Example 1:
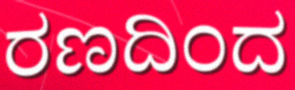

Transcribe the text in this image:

ರಣದಿಂದ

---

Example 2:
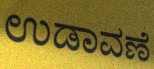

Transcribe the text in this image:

ಉಡಾವಣೆ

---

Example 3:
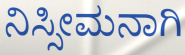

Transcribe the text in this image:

ನಿಸ್ಸೀಮನಾಗಿ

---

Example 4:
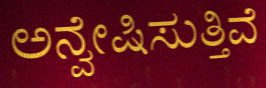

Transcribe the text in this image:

ಅನ್ವೇಷಿಸುತ್ತಿವೆ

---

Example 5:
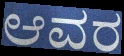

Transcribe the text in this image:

ಆವರ